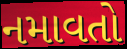
નમાવતો